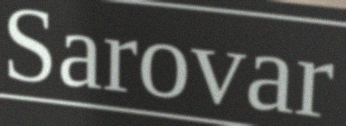
Sarovar